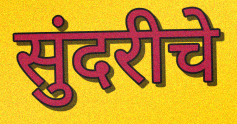
सुंदरीचे